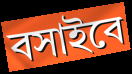
বসাইবে